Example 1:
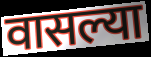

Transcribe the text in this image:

वासल्या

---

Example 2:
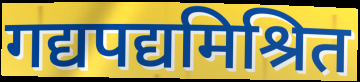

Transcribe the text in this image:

गद्यपद्यमिश्रित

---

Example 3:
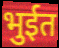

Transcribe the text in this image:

भुईत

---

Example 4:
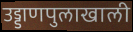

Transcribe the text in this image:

उड्डाणपुलाखाली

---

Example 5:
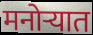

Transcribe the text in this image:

मनोऱ्यात